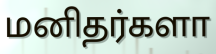
மனிதர்களா